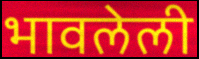
भावलेली